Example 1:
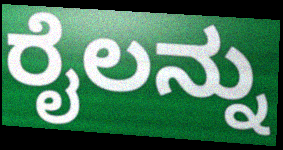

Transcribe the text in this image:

ರೈಲನ್ನು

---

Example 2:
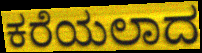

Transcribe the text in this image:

ಕರೆಯಲಾದ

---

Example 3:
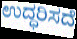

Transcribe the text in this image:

ಉದ್ಧರಿಸದೆ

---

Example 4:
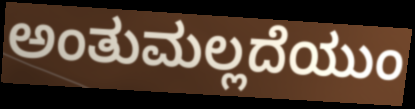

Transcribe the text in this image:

ಅಂತುಮಲ್ಲದೆಯುಂ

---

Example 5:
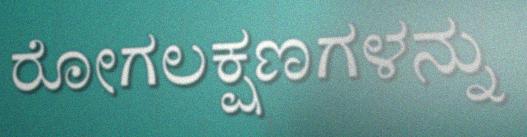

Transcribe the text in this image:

ರೋಗಲಕ್ಷಣಗಳನ್ನು